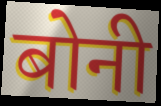
बोनी